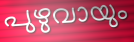
പുഴുവായും